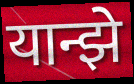
यान्झे